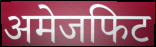
अमेजफिट